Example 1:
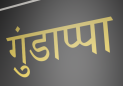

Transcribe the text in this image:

गुंडाप्पा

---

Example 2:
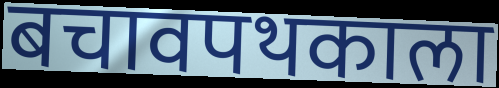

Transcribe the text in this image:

बचावपथकाला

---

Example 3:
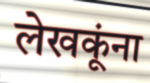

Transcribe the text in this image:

लेखकूंना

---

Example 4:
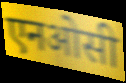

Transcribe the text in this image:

एनओसी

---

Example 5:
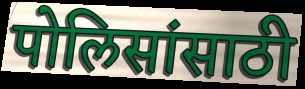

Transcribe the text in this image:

पोलिसांसाठी